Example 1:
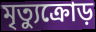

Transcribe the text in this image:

মৃত্যুক্রোড়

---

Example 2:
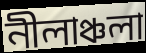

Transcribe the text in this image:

নীলাঞ্চলা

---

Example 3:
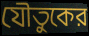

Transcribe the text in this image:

যৌতুকের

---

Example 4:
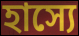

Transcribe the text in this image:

হাস্যে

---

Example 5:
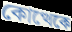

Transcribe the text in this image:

কোত্থেকে